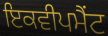
ਇਕਵੀਪਮੈਂਟ